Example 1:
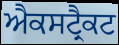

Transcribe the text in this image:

ਐਕਸਟ੍ਰੈਕਟ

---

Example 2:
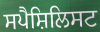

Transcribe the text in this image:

ਸਪੈਸ਼ਿਲਿਸਟ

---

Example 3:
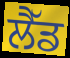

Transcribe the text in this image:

ਲੈੱਡ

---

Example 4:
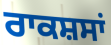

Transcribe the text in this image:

ਰਾਕਸ਼ਸਾਂ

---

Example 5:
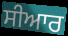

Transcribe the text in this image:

ਸੀਆਰ